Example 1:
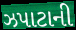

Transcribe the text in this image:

ઝપાટાની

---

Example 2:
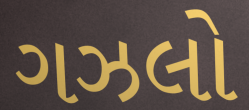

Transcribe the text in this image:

ગઝલો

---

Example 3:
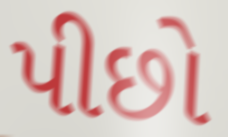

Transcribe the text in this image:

પીછો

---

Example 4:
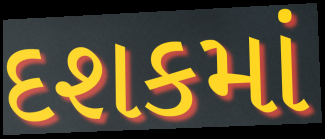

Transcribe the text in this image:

દશકમાં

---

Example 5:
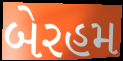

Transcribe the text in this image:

બેરહમ